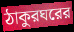
ঠাকুরঘরের